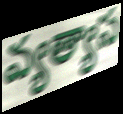
వ్యత్యాస